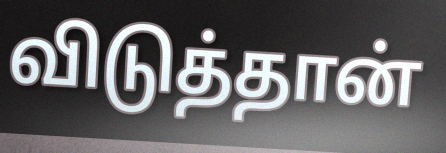
விடுத்தான்